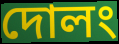
দোলং